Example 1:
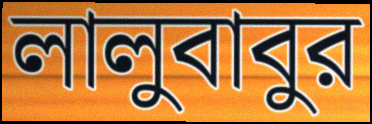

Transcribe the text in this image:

লালুবাবুর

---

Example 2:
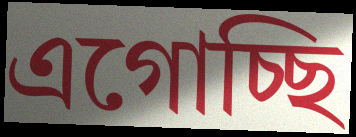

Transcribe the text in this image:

এগোচ্ছি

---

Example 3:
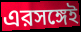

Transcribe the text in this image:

এরসঙ্গেই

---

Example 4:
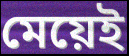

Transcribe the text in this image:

মেয়েই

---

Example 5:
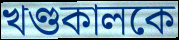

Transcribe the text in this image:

খণ্ডকালকে